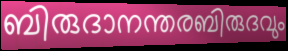
ബിരുദാനന്തരബിരുദവും